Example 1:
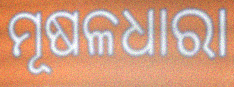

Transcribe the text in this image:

ମୂଷଳଧାରା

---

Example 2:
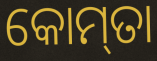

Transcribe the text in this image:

କୋମ୍‌ତା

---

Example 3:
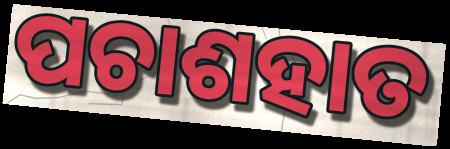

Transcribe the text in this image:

ପଚାଶହାତ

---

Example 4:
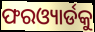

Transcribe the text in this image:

ଫରଓ୍ୟାର୍ଡକୁ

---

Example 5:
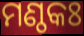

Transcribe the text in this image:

ମଣ୍ଠକଃ